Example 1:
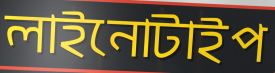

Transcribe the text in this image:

লাইনোটাইপ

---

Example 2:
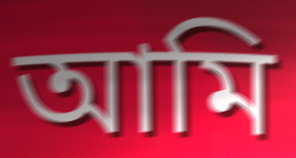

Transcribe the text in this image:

আমি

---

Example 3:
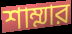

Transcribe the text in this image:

শাম্মার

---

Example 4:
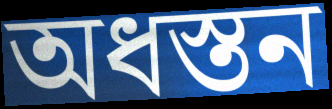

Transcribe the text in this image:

অধস্তন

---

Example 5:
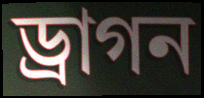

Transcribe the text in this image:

ড্রাগন